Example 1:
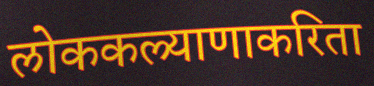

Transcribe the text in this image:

लोककल्याणाकरिता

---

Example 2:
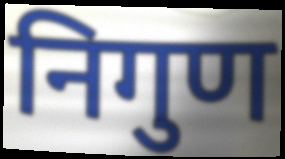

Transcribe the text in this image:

निगुण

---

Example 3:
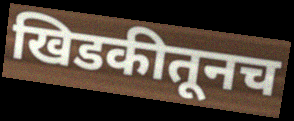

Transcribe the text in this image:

खिडकीतूनच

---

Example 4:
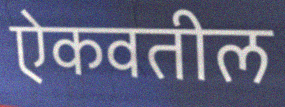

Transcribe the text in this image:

ऐकवतील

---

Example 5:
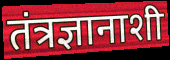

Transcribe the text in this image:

तंत्रज्ञानाशी